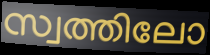
സ്വത്തിലോ